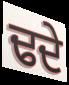
ਢਦੇ